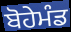
ਬੋਹੇਮੰਡ